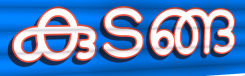
കുടങ്ങ